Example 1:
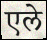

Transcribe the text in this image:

एले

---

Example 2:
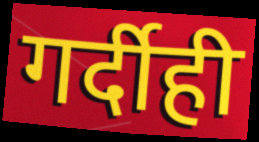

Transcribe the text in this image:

गर्दीही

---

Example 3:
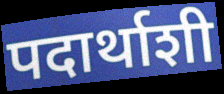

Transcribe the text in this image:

पदार्थाशी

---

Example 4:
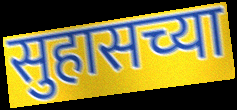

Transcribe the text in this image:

सुहासच्या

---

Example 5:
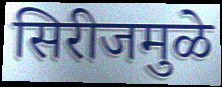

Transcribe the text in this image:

सिरीजमुळे